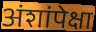
अंशांपेक्षा